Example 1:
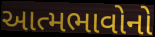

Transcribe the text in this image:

આત્મભાવોનો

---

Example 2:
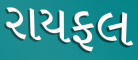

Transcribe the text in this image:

રાયફલ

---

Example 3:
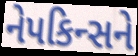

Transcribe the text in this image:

નેપકિન્સને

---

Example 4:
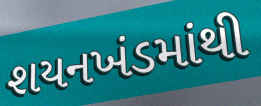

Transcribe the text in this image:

શયનખંડમાંથી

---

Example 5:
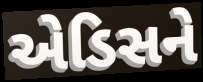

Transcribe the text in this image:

એડિસને